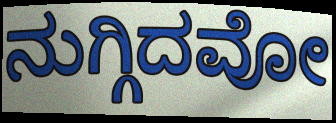
ನುಗ್ಗಿದವೋ